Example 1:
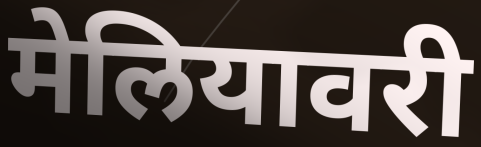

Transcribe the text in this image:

मेलियावरी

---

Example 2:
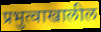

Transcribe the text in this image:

प्रभुत्वाखालील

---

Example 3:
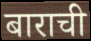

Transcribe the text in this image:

बाराची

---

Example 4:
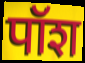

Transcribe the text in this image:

पॉश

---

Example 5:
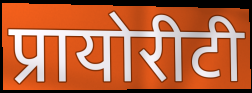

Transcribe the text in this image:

प्रायोरीटी